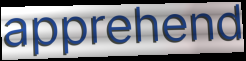
apprehend